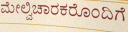
ಮೇಲ್ವಿಚಾರಕರೊಂದಿಗೆ